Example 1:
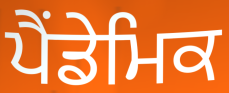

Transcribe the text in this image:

ਪੈਂਡੇਮਿਕ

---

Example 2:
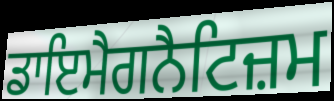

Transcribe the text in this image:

ਡਾਇਮੈਗਨੈਟਿਜ਼ਮ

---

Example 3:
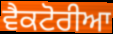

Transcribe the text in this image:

ਵੈਕਟੋਰੀਆ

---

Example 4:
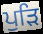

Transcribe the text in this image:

ਪੁੜਿ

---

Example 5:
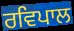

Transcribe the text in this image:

ਰਵਿਪਾਲ